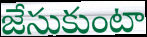
జేసుకుంటా